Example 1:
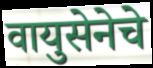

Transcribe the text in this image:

वायुसेनेचे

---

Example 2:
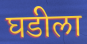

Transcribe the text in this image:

घडीला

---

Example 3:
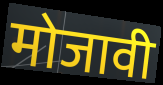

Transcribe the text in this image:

मोजावी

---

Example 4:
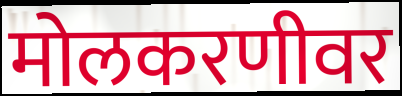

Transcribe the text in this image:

मोलकरणीवर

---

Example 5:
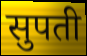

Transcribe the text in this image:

सुपती